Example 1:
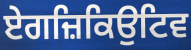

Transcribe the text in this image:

ਏਗਜ਼ਿਕਿਉਟਿਵ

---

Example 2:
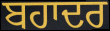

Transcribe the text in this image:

ਬਹਾਦਰ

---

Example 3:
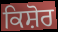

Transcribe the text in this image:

ਕਿਸ਼ੋਰ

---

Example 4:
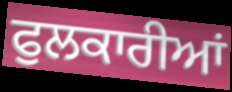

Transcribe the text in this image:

ਫੁਲਕਾਰੀਆਂ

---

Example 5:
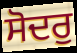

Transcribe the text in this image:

ਸੋਦਰੁ